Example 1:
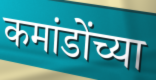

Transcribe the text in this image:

कमांडोंच्या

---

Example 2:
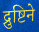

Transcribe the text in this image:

द्रुष्टिने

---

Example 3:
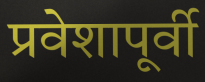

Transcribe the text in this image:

प्रवेशापूर्वी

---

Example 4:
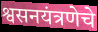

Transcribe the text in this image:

श्वसनयंत्रणेचे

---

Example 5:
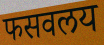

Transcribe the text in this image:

फसवलय